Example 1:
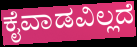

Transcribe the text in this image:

ಕೈವಾಡವಿಲ್ಲದೆ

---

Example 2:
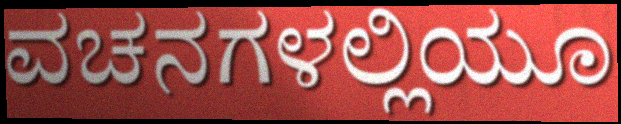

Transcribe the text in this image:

ವಚನಗಳಲ್ಲಿಯೂ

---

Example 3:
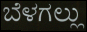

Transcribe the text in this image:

ಬೆಳಗಲ್ಲು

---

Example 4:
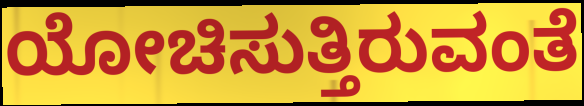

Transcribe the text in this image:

ಯೋಚಿಸುತ್ತಿರುವಂತೆ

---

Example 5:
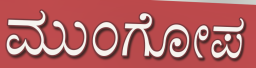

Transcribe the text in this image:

ಮುಂಗೋಪ